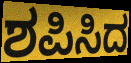
ಶಪಿಸಿದ